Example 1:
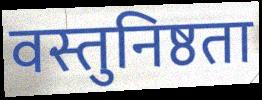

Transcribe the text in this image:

वस्तुनिष्ठता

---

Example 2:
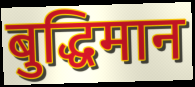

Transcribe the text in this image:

बुद्धिमान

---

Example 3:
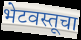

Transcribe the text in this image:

भेटवस्तूचा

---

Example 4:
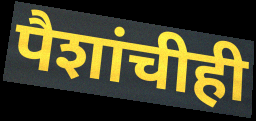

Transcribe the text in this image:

पैशांचीही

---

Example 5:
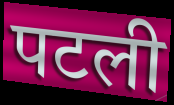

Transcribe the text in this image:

पटली